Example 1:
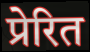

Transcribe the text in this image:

प्रेरित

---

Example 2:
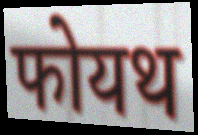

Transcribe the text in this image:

फोयथ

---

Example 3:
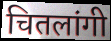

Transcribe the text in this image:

चितलांगी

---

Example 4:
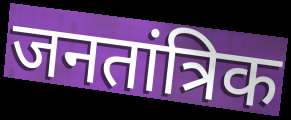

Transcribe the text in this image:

जनतांत्रिक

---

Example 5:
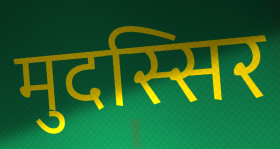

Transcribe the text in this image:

मुदस्सिर